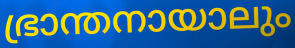
ഭ്രാന്തനായാലും